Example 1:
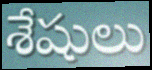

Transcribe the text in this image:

శేషులు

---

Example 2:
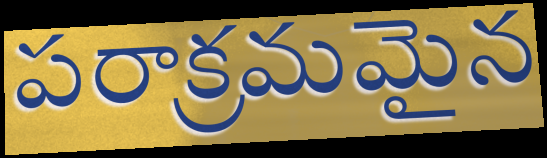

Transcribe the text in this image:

పరాక్రమమైన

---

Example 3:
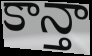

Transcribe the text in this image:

కాన్తా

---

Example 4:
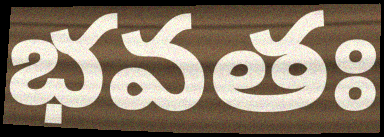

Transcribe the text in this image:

భవతః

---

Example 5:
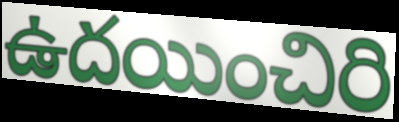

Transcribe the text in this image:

ఉదయించిరి